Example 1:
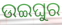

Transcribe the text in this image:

ଉଇଘୁର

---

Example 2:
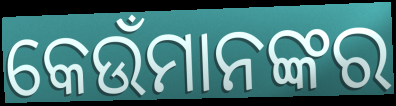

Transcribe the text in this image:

କେଉଁମାନଙ୍କର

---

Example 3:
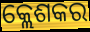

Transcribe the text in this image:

କ୍ଲେଶକର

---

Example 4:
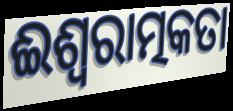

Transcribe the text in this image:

ଈଶ୍ଵରାତ୍ମକତା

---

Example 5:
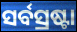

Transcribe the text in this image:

ସର୍ବସ୍ରଷ୍ଟା